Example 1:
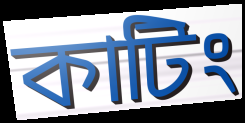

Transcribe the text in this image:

কাটিং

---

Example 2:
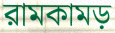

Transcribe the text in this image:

রামকামড়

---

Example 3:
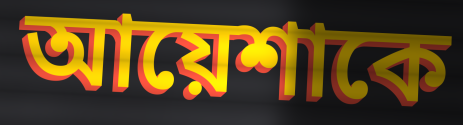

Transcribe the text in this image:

আয়েশাকে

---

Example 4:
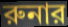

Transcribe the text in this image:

রুনার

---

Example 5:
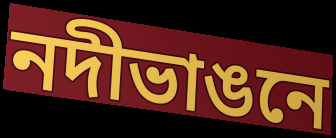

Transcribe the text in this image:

নদীভাঙনে